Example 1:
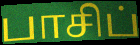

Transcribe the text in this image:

பாசிப்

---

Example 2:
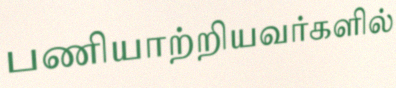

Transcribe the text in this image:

பணியாற்றியவர்களில்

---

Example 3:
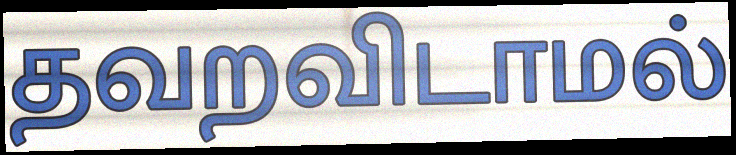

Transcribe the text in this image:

தவறவிடாமல்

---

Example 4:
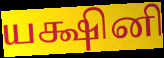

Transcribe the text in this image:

யக்ஷினி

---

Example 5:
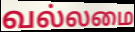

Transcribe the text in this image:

வல்லமை